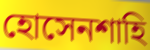
হোসেনশাহি